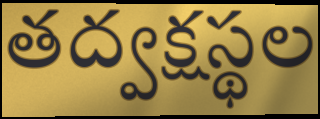
తద్వక్షస్థల